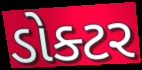
ડોક્ટર